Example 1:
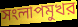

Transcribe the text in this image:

সংলাপমুখর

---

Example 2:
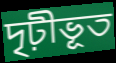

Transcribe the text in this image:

দৃঢ়ীভূত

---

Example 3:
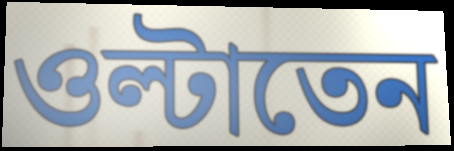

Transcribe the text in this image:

ওল্টাতেন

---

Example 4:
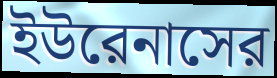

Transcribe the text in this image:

ইউরেনাসের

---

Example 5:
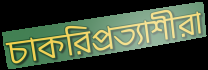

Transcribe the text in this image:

চাকরিপ্রত্যাশীরা